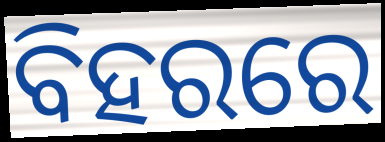
ବିହରରେ